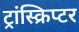
ट्रांस्क्रिप्टर